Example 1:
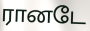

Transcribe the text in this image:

ரானடே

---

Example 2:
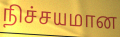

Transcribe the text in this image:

நிச்சயமான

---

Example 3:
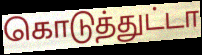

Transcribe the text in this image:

கொடுத்துட்டா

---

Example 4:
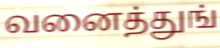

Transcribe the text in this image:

வனைத்துங்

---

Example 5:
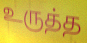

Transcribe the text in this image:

உருத்த